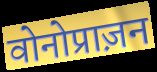
वोनोप्राज़न